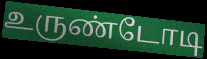
உருண்டோடி